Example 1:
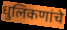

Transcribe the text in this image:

धुलिकणांचे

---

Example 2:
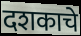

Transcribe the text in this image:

दशकाचे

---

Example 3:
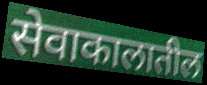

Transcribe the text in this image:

सेवाकालातील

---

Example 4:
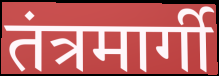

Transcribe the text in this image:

तंत्रमार्गी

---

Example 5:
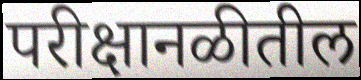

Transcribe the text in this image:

परीक्षानळीतील